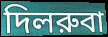
দিলরুবা